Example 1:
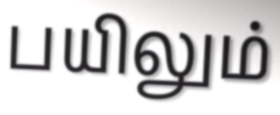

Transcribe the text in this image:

பயிலும்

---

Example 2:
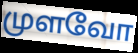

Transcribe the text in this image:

முளவோ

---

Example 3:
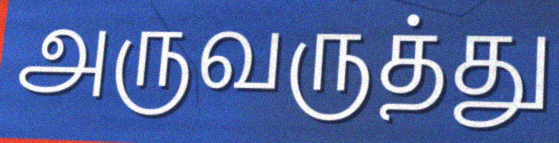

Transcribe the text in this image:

அருவருத்து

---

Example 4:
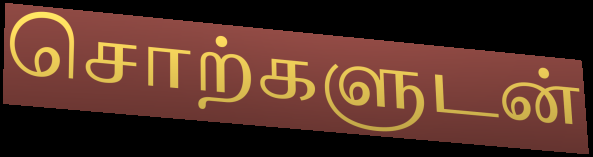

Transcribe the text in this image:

சொற்களுடன்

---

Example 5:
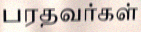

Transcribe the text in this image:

பரதவர்கள்